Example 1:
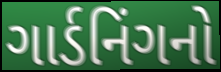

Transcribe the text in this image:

ગાર્ડનિંગનો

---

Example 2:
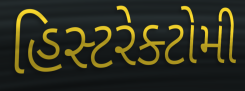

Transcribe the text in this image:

હિસ્ટરેક્ટોમી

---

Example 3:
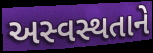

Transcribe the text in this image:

અસ્વસ્થતાને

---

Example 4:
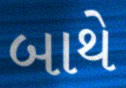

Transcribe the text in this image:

બાથે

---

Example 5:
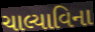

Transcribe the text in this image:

ચાલ્યાવિના